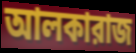
আলকারাজ